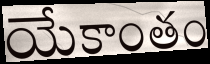
యేకాంతం